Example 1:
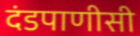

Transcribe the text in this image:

दंडपाणीसी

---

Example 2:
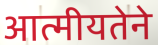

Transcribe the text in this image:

आत्मीयतेने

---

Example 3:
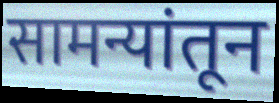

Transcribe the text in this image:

सामन्यांतून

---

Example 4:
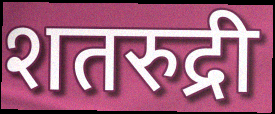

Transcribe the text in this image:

शतरुद्री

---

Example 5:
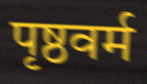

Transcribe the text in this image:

पृष्ठवर्म